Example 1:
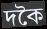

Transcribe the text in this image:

দকৈ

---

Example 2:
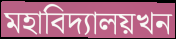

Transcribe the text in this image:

মহাবিদ্যালয়খন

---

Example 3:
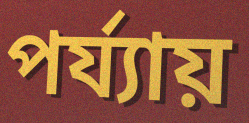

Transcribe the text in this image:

পৰ্য্যায়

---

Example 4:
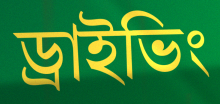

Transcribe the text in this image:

ড্ৰাইভিং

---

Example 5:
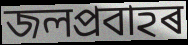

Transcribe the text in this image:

জলপ্ৰবাহৰ